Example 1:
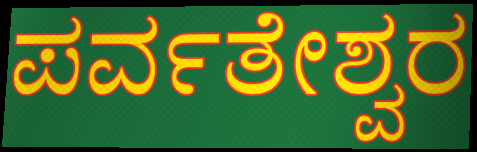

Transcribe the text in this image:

ಪರ್ವತೇಶ್ವರ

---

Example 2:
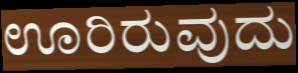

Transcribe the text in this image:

ಊರಿರುವುದು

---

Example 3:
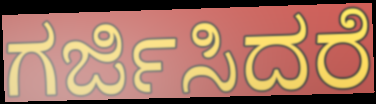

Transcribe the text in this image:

ಗರ್ಜಿಸಿದರೆ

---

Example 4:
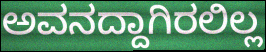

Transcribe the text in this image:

ಅವನದ್ದಾಗಿರಲಿಲ್ಲ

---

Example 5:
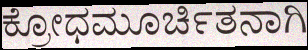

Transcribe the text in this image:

ಕ್ರೋಧಮೂರ್ಚಿತನಾಗಿ